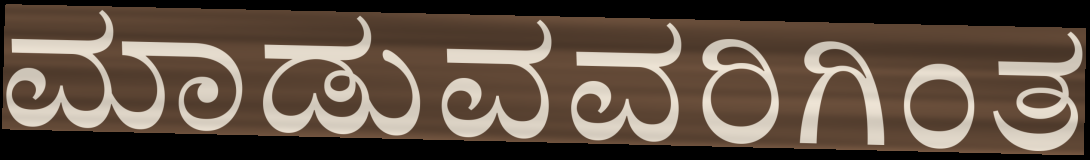
ಮಾಡುವವರಿಗಿಂತ